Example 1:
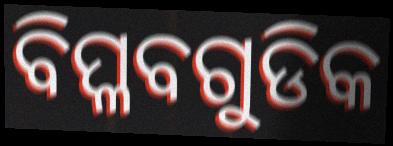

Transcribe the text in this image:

ବିପ୍ଳବଗୁଡିକ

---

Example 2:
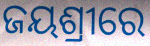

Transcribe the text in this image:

ଜୟଶ୍ରୀରେ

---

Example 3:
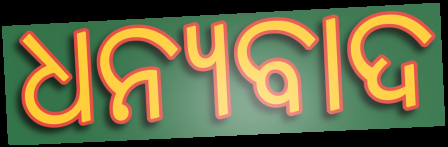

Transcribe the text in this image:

ଧନ୍ଯବାଦ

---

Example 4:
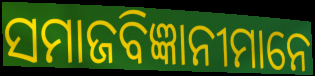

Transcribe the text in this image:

ସମାଜବିଜ୍ଞାନୀମାନେ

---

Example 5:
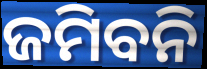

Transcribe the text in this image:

ଜମିବନି